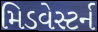
મિડવેસ્ટર્ન